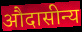
औदासीन्य